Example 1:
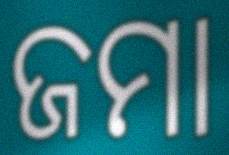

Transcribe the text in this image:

ଜମା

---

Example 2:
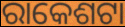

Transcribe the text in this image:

ରାକେଶଟା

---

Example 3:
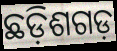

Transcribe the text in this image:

ଛଡ଼ିଶଗଡ଼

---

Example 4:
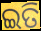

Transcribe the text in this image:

ଇତି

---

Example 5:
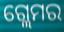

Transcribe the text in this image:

ଗ୍ଲେମର